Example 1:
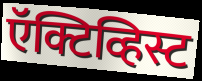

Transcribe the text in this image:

ऍक्टिव्हिस्ट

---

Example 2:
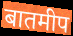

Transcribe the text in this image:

बातमीप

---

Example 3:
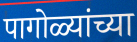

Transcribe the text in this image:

पागोळ्यांच्या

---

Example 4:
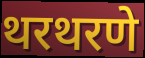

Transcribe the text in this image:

थरथरणे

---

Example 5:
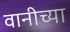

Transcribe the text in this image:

वानीच्या